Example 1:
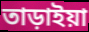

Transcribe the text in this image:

তাড়াইয়া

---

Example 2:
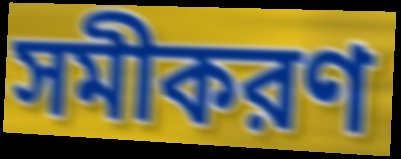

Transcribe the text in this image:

সমীকরণ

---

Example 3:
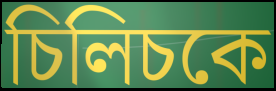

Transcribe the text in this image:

চিলিচকে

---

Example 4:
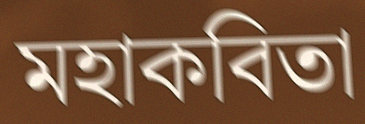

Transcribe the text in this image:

মহাকবিতা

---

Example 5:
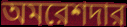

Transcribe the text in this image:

অমরেশদার